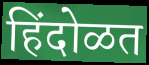
हिंदोळत